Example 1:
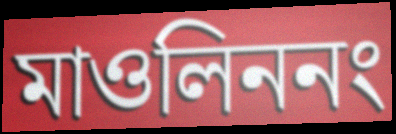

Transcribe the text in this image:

মাওলিননং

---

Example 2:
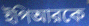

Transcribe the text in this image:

ইপিআরকে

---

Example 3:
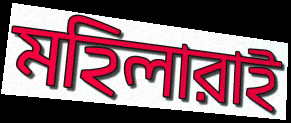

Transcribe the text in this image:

মহিলারাই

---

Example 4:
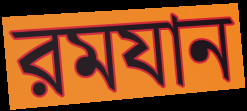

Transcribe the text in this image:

রমযান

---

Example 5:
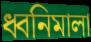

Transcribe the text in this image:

ধ্বনিমালা